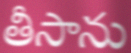
తీసాను